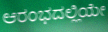
ಆರಂಭದಲ್ಲಿಯೇ